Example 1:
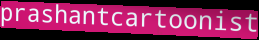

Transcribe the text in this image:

prashantcartoonist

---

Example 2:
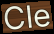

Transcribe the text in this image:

Cle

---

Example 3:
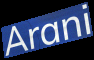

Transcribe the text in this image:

Arani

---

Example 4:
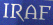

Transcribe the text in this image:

IRAF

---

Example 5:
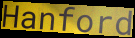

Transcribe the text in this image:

Hanford